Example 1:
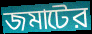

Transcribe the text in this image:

জমাটের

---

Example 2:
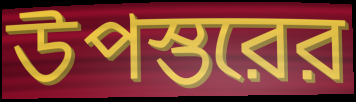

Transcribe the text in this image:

উপস্তরের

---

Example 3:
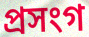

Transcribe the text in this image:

প্রসংগ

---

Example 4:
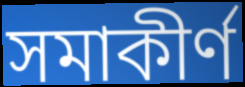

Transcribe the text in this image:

সমাকীর্ণ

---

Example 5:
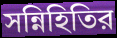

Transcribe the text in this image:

সন্নিহিতির